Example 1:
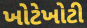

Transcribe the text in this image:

ખોટેખોટી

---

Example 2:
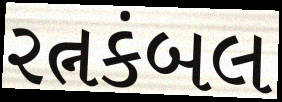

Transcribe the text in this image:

રત્નકંબલ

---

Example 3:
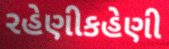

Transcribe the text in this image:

રહેણીકહેણી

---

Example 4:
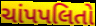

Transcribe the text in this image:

ચાંપપલિતો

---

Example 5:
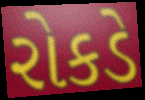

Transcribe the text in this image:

રોકડે